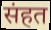
संहत